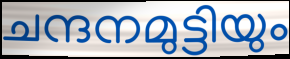
ചന്ദനമുട്ടിയും